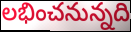
లభించనున్నది